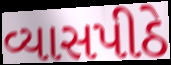
વ્યાસપીઠે